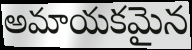
అమాయకమైన